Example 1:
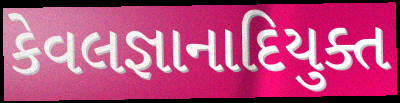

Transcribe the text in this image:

કેવલજ્ઞાનાદિયુક્ત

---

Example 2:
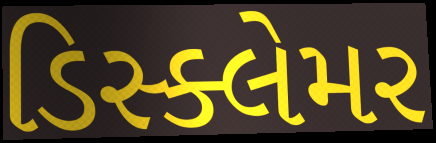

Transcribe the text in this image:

ડિસ્ક્લેમર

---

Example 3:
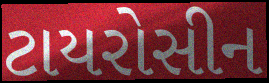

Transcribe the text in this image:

ટાયરોસીન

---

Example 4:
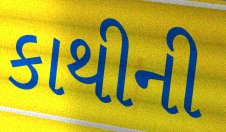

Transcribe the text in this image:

કાથીની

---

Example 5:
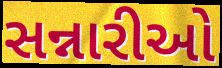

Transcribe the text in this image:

સન્નારીઓ